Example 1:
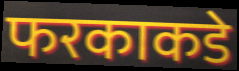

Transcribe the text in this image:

फरकाकडे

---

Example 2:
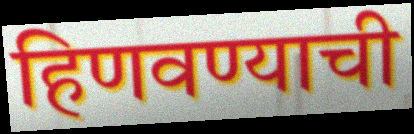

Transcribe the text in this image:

हिणवण्याची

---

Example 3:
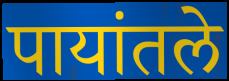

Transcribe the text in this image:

पायांतले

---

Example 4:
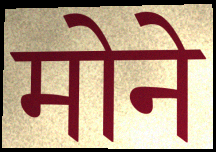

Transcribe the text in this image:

मोने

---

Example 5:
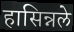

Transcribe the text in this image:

हासिन्नले